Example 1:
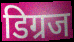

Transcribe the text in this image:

डिग्रज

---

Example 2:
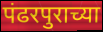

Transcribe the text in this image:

पंढरपुराच्या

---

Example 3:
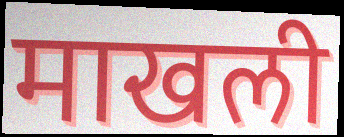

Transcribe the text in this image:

माखली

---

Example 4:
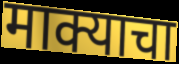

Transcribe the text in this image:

माक्याचा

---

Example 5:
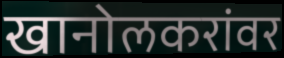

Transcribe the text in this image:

खानोलकरांवर